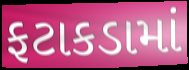
ફટાકડામાં